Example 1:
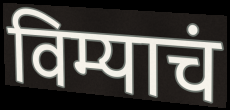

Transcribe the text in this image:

विम्याचं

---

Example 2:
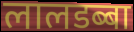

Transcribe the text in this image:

लालडब्बा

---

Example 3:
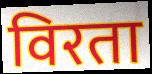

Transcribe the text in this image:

विरता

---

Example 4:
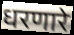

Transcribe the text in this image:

धरणारे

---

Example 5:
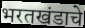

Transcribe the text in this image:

भरतखंडाचे